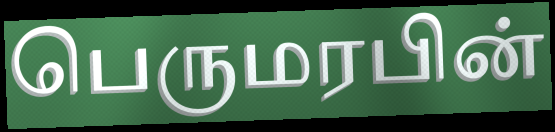
பெருமரபின்